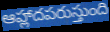
ఆహ్లాదపరుస్తుంది